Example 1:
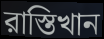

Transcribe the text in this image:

রাস্তিখান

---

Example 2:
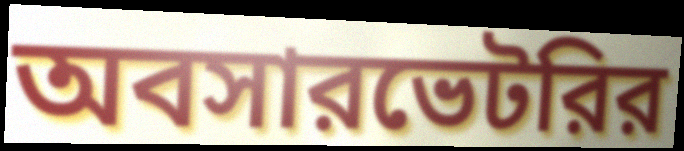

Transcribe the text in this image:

অবসারভেটরির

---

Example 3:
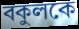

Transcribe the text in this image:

বকুলকে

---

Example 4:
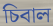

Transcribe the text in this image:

চিবাল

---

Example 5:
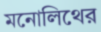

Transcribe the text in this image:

মনোলিথের